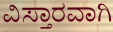
ವಿಸ್ತಾರವಾಗಿ